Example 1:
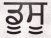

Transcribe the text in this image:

ਡੂਸੂ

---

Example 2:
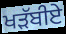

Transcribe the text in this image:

ਖੜੱਬੀਏ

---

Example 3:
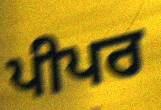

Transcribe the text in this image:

ਪੀਪਰ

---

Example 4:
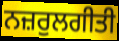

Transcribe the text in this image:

ਨਜ਼ਰੁਲਗੀਤੀ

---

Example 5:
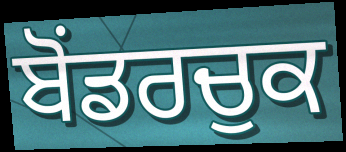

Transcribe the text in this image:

ਬੋਂਡਰਚੁਕ